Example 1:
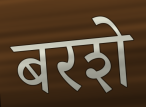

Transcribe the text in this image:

बरशे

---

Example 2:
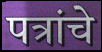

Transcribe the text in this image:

पत्रांचे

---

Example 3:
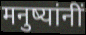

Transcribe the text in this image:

मनुष्यांनीं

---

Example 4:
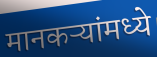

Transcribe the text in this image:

मानकऱ्यांमध्ये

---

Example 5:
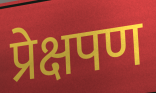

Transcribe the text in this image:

प्रेक्षपण